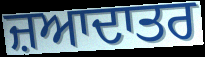
ਜ਼ਆਦਾਤਰ